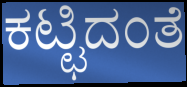
ಕಟ್ಟಿದಂತೆ